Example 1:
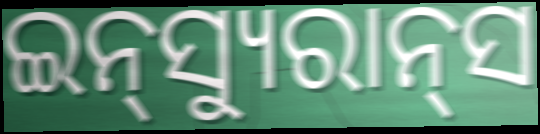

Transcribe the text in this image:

ଇନ୍‌ସ୍ୟୁରାନ୍‌ସ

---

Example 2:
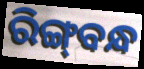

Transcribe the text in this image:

ରିଙ୍ଗ୍‌ବନ୍ଧ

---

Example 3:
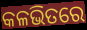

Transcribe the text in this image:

କଳଭିତରେ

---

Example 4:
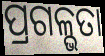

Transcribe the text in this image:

ପ୍ରଗଳ୍ଭତା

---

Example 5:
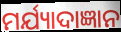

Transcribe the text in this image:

ମର୍ଯ୍ୟାଦାଜ୍ଞାନ